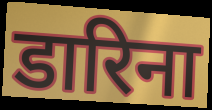
डारिना